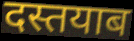
दस्तयाब